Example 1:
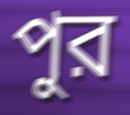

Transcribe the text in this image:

পুর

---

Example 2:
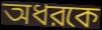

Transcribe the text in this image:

অধরকে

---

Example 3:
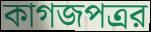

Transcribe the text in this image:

কাগজপত্রর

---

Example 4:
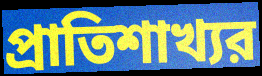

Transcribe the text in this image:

প্রাতিশাখ্যর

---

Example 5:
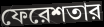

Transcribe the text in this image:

ফেরেশতার